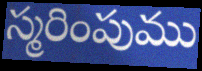
స్మరింపుము